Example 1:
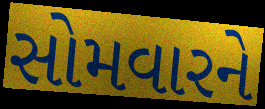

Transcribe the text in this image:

સોમવારને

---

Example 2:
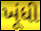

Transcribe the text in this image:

ખૂંધી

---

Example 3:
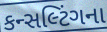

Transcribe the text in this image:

કન્સલ્ટિંગના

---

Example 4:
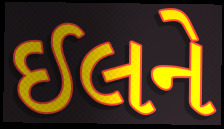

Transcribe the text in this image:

ઈલને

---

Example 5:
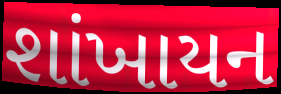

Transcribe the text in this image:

શાંખાયન